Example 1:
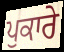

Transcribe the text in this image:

ਪੁਕਾਰੇ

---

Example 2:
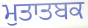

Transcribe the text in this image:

ਮੁਤਾਤਬਕ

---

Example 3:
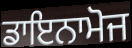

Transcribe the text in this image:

ਡਾਇਨਾਮੋਜ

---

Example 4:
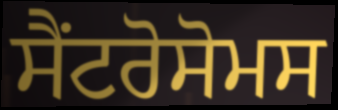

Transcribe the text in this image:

ਸੈਂਟਰੋਸੋਮਸ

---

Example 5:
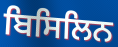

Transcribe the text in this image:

ਬਿਸਿਲਿਨ